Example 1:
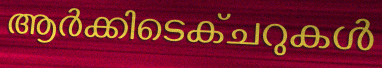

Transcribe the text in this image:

ആർക്കിടെക്ചറുകൾ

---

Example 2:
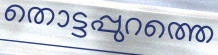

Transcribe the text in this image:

തൊട്ടപ്പുറത്തെ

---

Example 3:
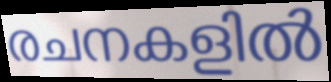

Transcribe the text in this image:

രചനകളിൽ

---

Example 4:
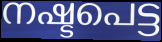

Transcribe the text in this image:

നഷ്ടപെട്ട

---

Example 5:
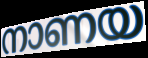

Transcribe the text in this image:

നാണയ